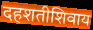
दहशतीशिवाय